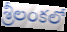
శ్రీలంకలో